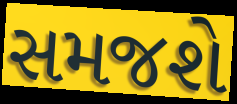
સમજશે